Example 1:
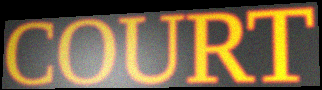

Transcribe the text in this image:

COURT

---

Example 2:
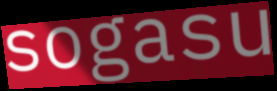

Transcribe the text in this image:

sogasu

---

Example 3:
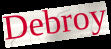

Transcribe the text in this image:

Debroy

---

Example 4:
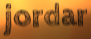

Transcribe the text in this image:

jordar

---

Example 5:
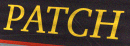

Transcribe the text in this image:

PATCH